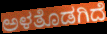
ಅಳತೊಡಗಿದೆ